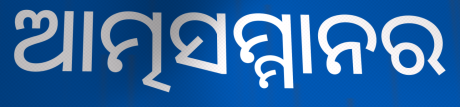
ଆତ୍ମସମ୍ମାନର